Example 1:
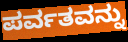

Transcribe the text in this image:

ಪರ್ವತವನ್ನು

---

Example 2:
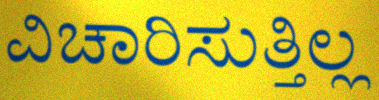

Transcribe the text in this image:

ವಿಚಾರಿಸುತ್ತಿಲ್ಲ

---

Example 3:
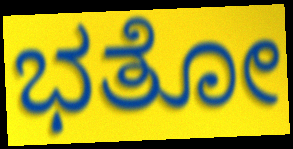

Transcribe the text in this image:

ಭತೋ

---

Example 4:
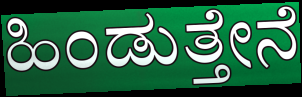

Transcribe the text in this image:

ಹಿಂಡುತ್ತೇನೆ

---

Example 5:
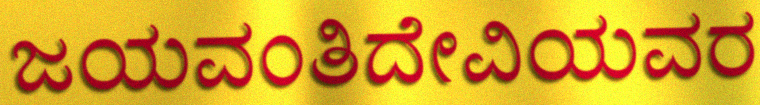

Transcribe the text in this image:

ಜಯವಂತಿದೇವಿಯವರ